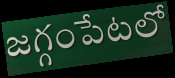
జగ్గంపేటలో